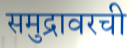
समुद्रावरची